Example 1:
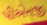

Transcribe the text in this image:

પીએનજી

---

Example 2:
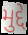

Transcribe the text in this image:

મુદ્દે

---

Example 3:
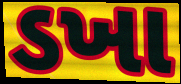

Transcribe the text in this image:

ડખા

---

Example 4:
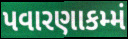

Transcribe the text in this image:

પવારણાકમ્મં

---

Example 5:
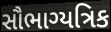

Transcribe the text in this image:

સૌભાગ્યત્રિક